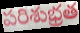
పరిశుభ్రత